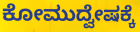
ಕೋಮುದ್ವೇಷಕ್ಕೆ